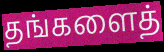
தங்களைத்